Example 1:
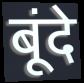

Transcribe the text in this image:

बूंदे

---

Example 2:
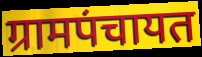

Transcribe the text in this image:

ग्रामपंचायत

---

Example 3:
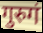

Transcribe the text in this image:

गुरुगं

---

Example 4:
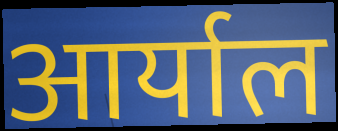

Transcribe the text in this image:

आर्याल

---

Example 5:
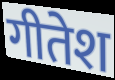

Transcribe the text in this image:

गीतेश